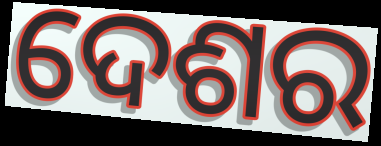
ଦେଶର